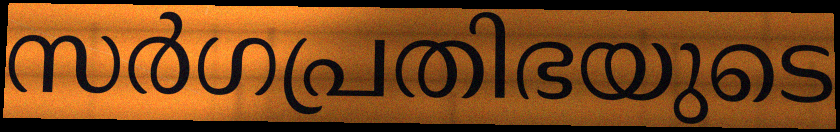
സർഗപ്രതിഭയുടെ